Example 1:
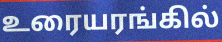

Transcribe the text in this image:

உரையரங்கில்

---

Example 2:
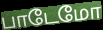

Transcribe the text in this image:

பாடேமோ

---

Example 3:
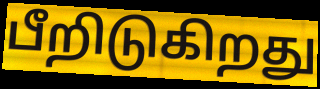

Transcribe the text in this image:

பீறிடுகிறது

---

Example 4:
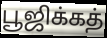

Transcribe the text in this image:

பூஜிக்கத்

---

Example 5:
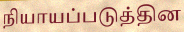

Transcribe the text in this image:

நியாயப்படுத்தின